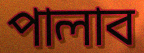
পালাব